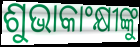
ଶୁଭାକାଂକ୍ଷୀଙ୍କୁ